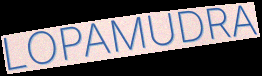
LOPAMUDRA